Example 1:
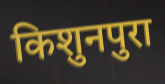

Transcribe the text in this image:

किशुनपुरा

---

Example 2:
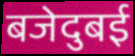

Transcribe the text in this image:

बजेदुबई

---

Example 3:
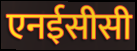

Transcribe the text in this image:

एनईसीसी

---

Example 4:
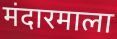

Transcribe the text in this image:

मंदारमाला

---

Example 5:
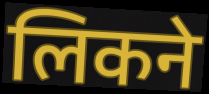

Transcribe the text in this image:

लिकने